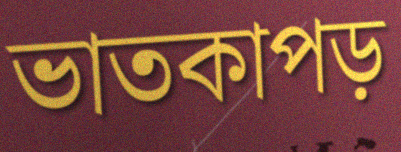
ভাতকাপড়